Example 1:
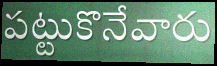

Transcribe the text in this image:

పట్టుకొనేవారు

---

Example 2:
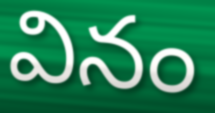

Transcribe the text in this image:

వినం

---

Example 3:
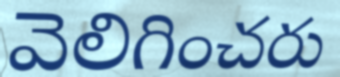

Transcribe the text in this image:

వెలిగించరు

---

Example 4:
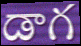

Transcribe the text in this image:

డాగ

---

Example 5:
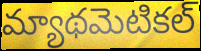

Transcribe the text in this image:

మ్యాథమెటికల్